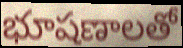
భూషణాలతో